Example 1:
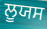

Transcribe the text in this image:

ਲੂਯਸ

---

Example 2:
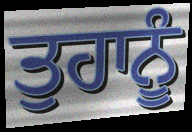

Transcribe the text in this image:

ਤੁਹਾਨੂੰ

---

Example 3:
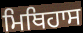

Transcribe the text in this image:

ਮਿਥਿਹਾਸ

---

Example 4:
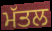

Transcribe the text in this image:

ਮੱਤਲ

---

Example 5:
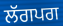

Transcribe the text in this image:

ਲੱਗਪਗ